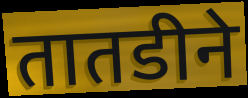
तातडीने